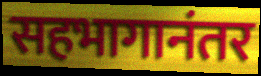
सहभागानंतर